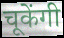
चूकेंगी